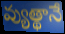
వ్యుత్థానే